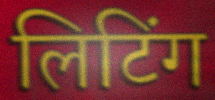
लिटिंग